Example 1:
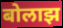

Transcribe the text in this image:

बोलाझ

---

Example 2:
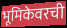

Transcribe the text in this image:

भूमिकेवरची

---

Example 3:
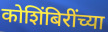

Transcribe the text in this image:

कोशिंबिरींच्या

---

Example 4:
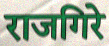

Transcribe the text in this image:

राजगिरे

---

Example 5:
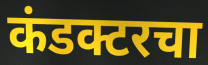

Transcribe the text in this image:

कंडक्टरचा